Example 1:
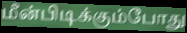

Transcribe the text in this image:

மீன்பிடிக்கும்போது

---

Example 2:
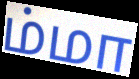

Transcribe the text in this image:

ம்மா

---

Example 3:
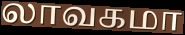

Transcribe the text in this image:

லாவகமா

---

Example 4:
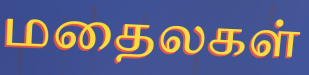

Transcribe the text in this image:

மதைலகள்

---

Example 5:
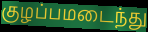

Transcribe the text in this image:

குழப்பமடைந்து